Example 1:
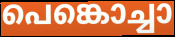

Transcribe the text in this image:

പെങ്കൊച്ചാ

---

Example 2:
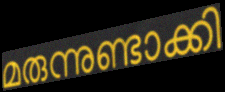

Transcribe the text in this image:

മരുന്നുണ്ടാക്കി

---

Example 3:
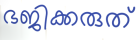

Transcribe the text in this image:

ഭജിക്കരുത്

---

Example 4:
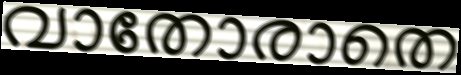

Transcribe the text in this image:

വാതോരാതെ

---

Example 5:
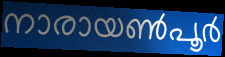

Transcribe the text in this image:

നാരായൺപൂർ